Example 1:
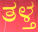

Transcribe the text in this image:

ತಳ್ತ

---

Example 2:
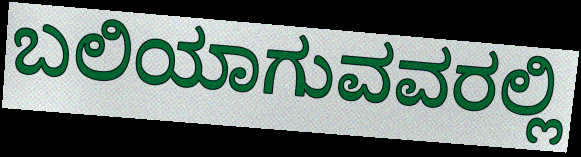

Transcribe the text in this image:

ಬಲಿಯಾಗುವವರಲ್ಲಿ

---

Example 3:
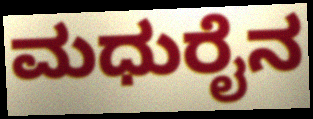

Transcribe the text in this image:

ಮಧುರೈನ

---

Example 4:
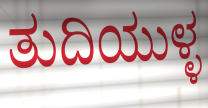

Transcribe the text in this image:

ತುದಿಯುಳ್ಳ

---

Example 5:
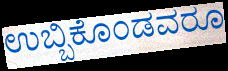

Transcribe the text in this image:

ಉಬ್ಬಿಕೊಂಡವರೂ